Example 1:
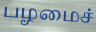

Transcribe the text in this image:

பழமைச்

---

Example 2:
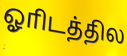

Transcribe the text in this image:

ஓரிடத்தில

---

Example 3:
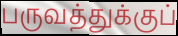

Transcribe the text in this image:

பருவத்துக்குப்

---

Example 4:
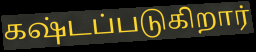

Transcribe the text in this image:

கஷ்டப்படுகிறார்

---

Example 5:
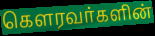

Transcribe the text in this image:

கௌரவர்களின்